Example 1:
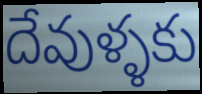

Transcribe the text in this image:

దేవుళ్ళకు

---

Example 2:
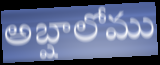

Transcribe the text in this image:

అబ్షాలోము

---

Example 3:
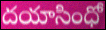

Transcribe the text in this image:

దయాసింధో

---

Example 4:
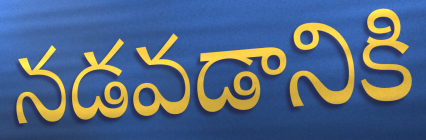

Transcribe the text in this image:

నడవడానికి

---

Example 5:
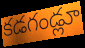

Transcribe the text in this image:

కడగండ్లూ